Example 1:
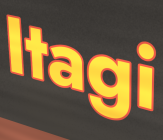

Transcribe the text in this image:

Itagi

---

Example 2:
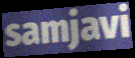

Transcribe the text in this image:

samjavi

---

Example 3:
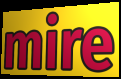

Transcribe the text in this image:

mire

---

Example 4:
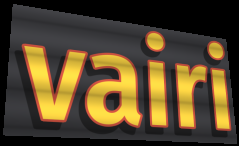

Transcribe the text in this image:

vairi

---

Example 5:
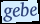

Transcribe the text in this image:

gebe